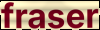
fraser